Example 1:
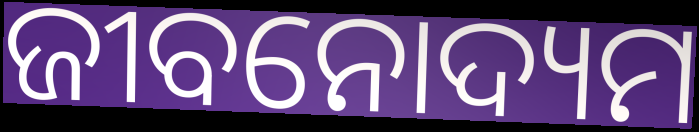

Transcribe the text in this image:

ଜୀବନୋଦ୍ୟମ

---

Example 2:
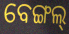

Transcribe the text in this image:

ବେଙ୍ଗଲ୍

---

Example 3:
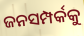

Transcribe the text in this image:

ଜନସମ୍ପର୍କକୁ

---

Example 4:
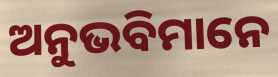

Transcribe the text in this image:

ଅନୁଭବିମାନେ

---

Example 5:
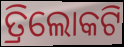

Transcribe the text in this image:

ତ୍ରିଲୋକଟି